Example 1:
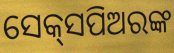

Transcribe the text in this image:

ସେକ୍‌ସପିଅରଙ୍କ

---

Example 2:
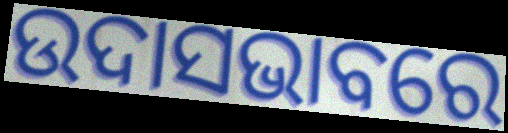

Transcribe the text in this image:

ଉଦାସଭାବରେ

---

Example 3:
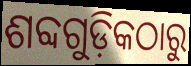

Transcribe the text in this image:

ଶବ୍ଦଗୁଡ଼ିକଠାରୁ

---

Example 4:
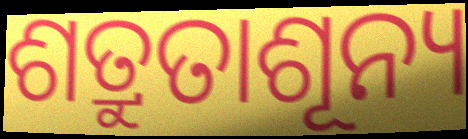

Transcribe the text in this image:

ଶତ୍ରୁତାଶୂନ୍ୟ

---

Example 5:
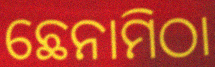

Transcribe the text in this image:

ଛେନାମିଠା